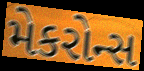
મેકરોન્સ